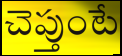
చెప్తుంటే